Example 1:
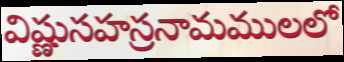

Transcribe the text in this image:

విష్ణుసహస్రనామములలో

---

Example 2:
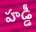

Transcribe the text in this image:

హడ్డీ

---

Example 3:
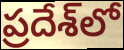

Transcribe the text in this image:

ప్రదేశ్‌లో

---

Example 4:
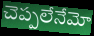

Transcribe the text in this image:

చెప్పలేనేమో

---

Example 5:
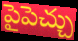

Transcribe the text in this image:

పైపెచ్చు